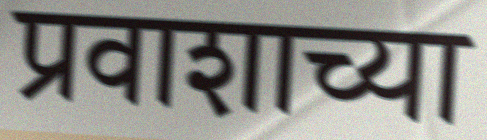
प्रवाशाच्या